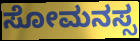
ಸೋಮನಸ್ಸ